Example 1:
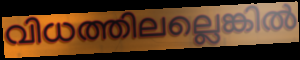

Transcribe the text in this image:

വിധത്തിലല്ലെങ്കിൽ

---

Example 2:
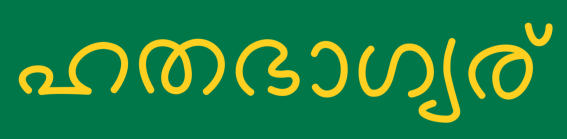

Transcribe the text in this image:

ഹതഭാഗ്യര്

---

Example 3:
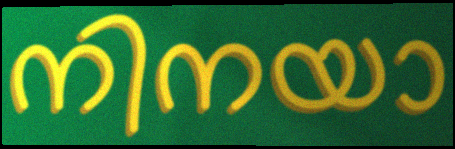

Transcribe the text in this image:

നിനയാ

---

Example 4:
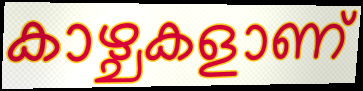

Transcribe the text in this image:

കാഴ്ചകളാണ്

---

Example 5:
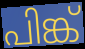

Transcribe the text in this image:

പിങ്ക്